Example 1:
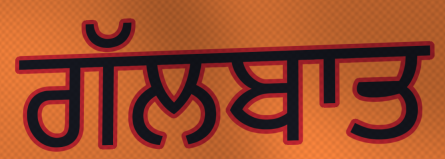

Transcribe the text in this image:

ਗੱਲਬਾਤ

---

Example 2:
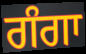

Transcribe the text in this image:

ਗੰਗਾ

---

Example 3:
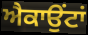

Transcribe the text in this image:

ਐਕਾਉਂਟਾਂ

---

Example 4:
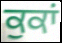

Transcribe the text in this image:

ਕੁਕਾਂ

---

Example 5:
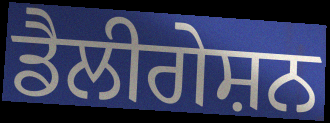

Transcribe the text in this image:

ਡੈਲੀਗੇਸ਼ਨ